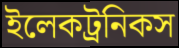
ইলেকট্রনিকস